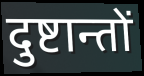
दुष्टान्तों